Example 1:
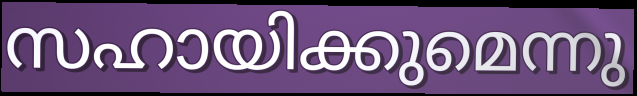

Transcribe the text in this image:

സഹായിക്കുമെന്നു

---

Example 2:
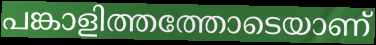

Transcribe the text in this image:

പങ്കാളിത്തത്തോടെയാണ്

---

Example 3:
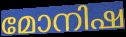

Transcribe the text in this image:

മോനിഷ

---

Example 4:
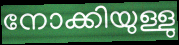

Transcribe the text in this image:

നോക്കിയുള്ളു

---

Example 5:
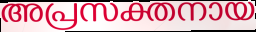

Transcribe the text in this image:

അപ്രസക്തനായ